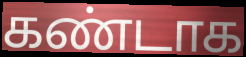
கண்டாக